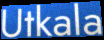
Utkala